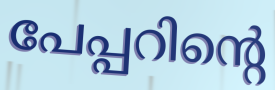
പേപ്പറിന്റെ